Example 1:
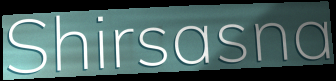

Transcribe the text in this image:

Shirsasna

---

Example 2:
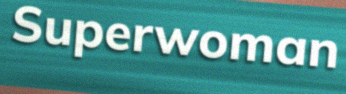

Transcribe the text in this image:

Superwoman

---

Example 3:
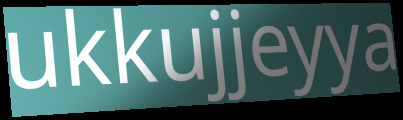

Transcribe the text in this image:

ukkujjeyya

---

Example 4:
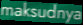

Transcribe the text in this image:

maksudnya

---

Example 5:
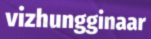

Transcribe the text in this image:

vizhungginaar